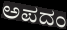
ಅಪದಂ